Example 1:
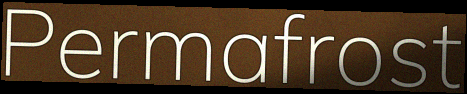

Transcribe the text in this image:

Permafrost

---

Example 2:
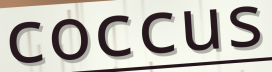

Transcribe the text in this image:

coccus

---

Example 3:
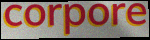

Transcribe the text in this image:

corpore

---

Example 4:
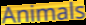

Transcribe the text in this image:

Animals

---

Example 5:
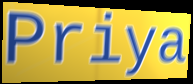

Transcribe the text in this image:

Priya